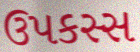
ઉપકસ્સ